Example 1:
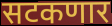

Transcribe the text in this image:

सटकणार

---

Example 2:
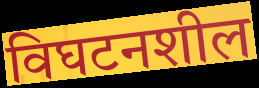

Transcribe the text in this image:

विघटनशील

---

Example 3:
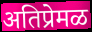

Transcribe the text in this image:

अतिप्रेमळ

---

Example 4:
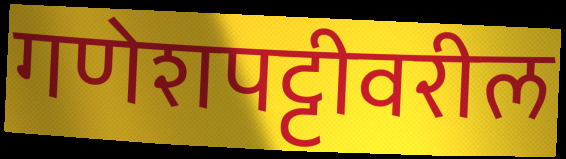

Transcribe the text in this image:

गणेशपट्टीवरील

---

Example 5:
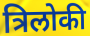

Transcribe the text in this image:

त्रिलोकी